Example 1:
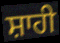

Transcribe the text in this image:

ਸ਼ਾਹੀ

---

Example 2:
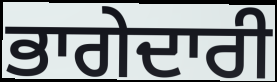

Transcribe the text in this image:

ਭਾਗੇਦਾਰੀ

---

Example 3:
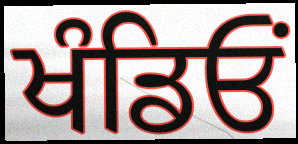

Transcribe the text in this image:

ਖੰਡਿਓਂ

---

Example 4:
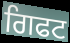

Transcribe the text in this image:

ਗਿਫਟ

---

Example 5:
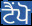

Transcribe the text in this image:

ਟੈਂਪੋ